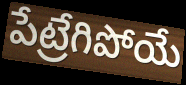
పేట్రేగిపోయే